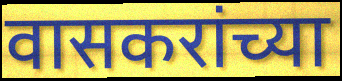
वासकरांच्या